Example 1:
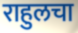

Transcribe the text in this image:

राहुलचा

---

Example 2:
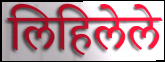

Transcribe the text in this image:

लिहिलेले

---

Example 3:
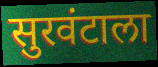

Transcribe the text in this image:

सुरवंटाला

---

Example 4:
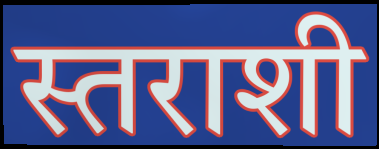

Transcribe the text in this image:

स्तराशी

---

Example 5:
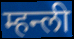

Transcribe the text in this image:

म्हन्ली